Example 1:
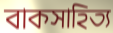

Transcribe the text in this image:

বাকসাহিত্য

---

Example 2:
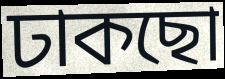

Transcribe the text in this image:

ঢাকছো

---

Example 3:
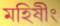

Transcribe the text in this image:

মহিষীং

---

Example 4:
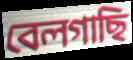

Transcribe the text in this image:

বেলগাছি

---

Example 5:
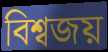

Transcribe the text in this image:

বিশ্বজয়